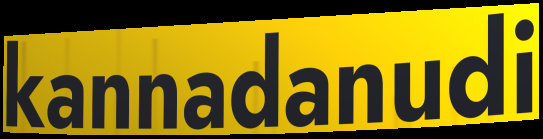
kannadanudi